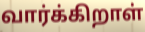
வார்க்கிறாள்